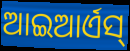
ଆଇଆର୍ଏସ୍